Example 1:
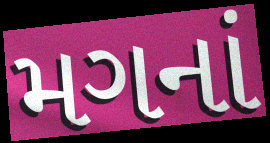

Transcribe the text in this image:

મગનાં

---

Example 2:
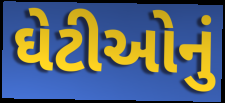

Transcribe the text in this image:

ઘેટીઓનું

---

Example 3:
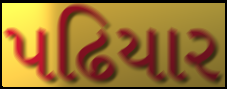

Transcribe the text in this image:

પઢિયાર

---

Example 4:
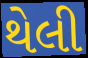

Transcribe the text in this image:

થેલી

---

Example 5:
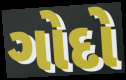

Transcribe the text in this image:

ગોદો